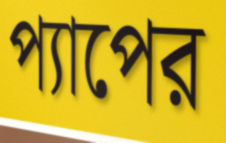
প্যাপের